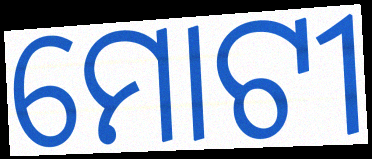
ମୋଟୀ